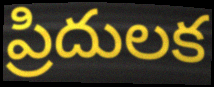
ప్రిదులక